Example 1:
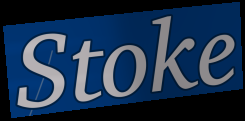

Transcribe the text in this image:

Stoke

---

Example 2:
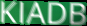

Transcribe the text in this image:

KIADB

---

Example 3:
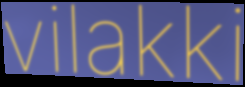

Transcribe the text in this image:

vilakki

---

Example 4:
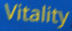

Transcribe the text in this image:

Vitality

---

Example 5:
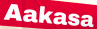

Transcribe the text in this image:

Aakasa